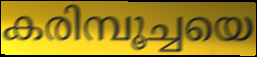
കരിമ്പൂച്ചയെ